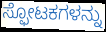
ಸ್ಫೋಟಕಗಳನ್ನು